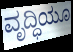
ವೃದ್ಧಿಯೂ